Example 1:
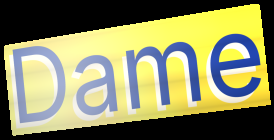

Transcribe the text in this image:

Dame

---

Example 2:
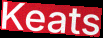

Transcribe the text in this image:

Keats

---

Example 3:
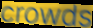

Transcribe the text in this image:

crowds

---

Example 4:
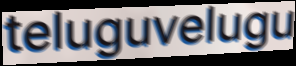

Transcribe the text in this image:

teluguvelugu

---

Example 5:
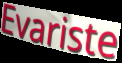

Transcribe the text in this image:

Evariste